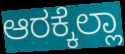
ಆರಕ್ಕೆಲ್ಲಾ